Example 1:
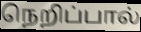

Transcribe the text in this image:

நெறிப்பால்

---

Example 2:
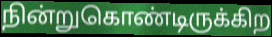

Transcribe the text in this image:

நின்றுகொண்டிருக்கிற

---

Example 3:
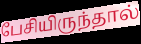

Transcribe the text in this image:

பேசியிருந்தால்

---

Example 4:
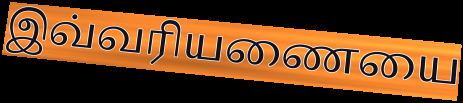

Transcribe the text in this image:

இவ்வரியணையை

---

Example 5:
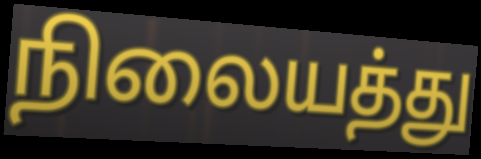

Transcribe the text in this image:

நிலையத்து